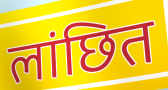
लांछित